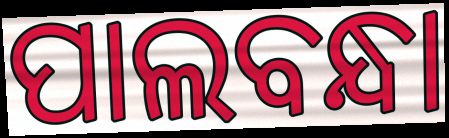
ପାଲବନ୍ଧା